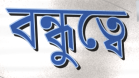
বন্ধুত্বে